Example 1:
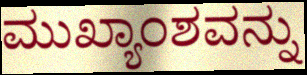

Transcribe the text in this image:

ಮುಖ್ಯಾಂಶವನ್ನು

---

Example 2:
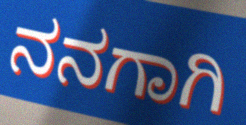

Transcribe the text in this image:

ನನಗಾಗಿ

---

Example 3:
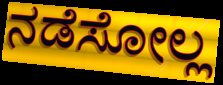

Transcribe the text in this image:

ನಡೆಸೋಲ್ಲ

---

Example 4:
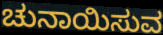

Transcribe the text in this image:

ಚುನಾಯಿಸುವ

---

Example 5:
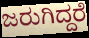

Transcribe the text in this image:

ಜರುಗಿದ್ದರೆ